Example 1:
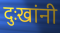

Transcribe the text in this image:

दुःखांनी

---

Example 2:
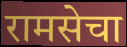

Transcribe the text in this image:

रामसेचा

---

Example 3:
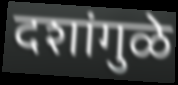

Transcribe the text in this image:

दशांगुळे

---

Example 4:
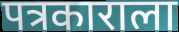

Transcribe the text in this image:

पत्रकाराला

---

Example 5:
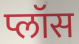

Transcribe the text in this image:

प्लॉस